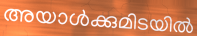
അയാൾക്കുമിടയിൽ